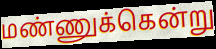
மண்ணுக்கென்று